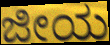
ಜೀಯ